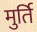
मुर्ति